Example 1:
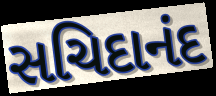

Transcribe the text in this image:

સચિદાનંદ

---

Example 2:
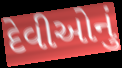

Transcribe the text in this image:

દેવીઓનું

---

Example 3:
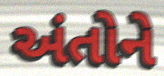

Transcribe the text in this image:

અંતોને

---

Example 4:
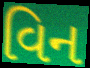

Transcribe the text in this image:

વિન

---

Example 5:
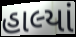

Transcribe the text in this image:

હાલ્યાં